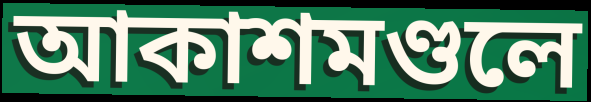
আকাশমণ্ডলে